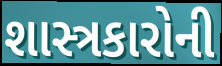
શાસ્ત્રકારોની